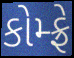
કોમ્ફ્રે